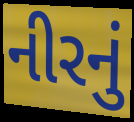
નીરનું